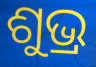
ଶୁଭ୍ର